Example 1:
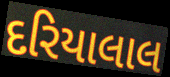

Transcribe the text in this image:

દરિયાલાલ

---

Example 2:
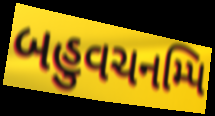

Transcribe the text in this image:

બહુવચનમ્પિ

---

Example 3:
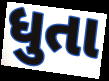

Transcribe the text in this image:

ધુતા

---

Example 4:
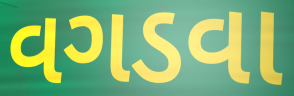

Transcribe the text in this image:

વગડવા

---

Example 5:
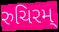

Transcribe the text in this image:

રુચિરમ્